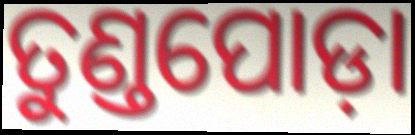
ତୁଣ୍ଡପୋଡ଼ା